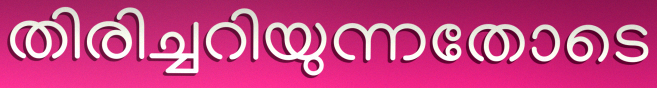
തിരിച്ചറിയുന്നതോടെ